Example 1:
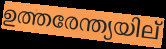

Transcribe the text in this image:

ഉത്തരേന്ത്യയില്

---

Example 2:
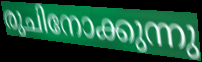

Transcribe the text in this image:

രുചിനോക്കുന്നു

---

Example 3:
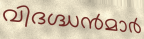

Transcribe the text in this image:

വിദഗ്ദ്ധൻമാർ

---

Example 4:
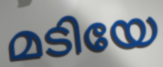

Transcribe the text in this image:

മടിയേ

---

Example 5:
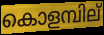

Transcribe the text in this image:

കൊളമ്പില്